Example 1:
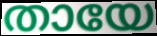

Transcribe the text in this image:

തായേ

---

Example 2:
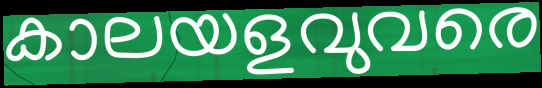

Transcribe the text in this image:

കാലയളവുവരെ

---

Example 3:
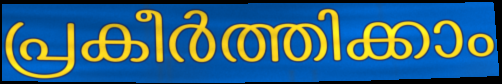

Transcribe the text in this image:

പ്രകീർത്തിക്കാം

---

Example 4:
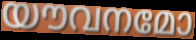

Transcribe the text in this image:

യൗവനമോ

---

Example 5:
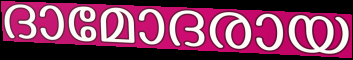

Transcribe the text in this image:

ദാമോദരായ